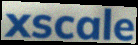
xscale